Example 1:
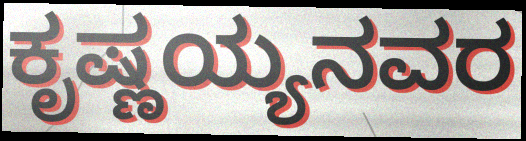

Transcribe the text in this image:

ಕೃಷ್ಣಯ್ಯನವರ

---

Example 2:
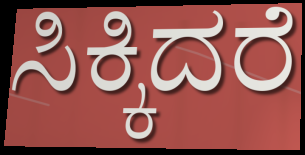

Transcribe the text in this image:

ಸಿಕ್ಕಿದರೆ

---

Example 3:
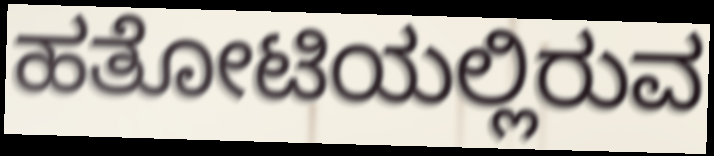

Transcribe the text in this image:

ಹತೋಟಿಯಲ್ಲಿರುವ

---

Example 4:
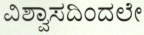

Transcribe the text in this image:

ವಿಶ್ವಾಸದಿಂದಲೇ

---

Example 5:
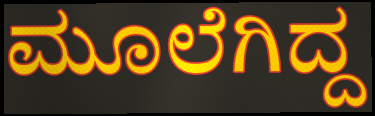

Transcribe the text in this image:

ಮೂಲೆಗಿದ್ದ